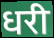
धरी